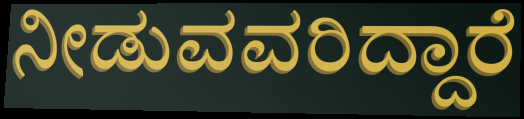
ನೀಡುವವರಿದ್ದಾರೆ